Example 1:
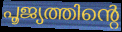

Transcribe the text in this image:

പൂജ്യത്തിന്റെ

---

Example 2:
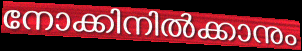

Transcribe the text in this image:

നോക്കിനിൽക്കാനും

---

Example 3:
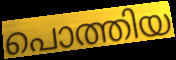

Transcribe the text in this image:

പൊത്തിയ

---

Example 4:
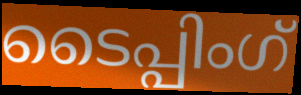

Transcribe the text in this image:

ടൈപ്പിംഗ്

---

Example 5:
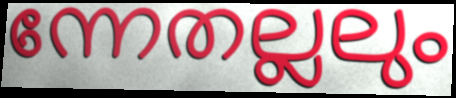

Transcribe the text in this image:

ന്നേതല്ലലും